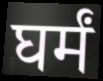
घर्मं